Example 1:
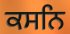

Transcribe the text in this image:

ਕਸਨਿ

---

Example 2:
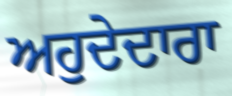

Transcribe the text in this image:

ਅਹੁਦੇਦਾਰਾ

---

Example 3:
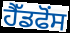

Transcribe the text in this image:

ਹੈੱਡਫੋਂਸ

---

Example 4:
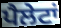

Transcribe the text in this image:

ਪੈਲੇਟਾਂ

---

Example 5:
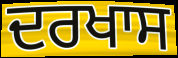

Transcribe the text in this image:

ਦਰਖਾਸ